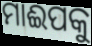
ମାଈପକୁ